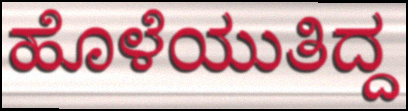
ಹೊಳೆಯುತಿದ್ದ